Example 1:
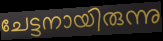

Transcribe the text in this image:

ചേട്ടനായിരുന്നു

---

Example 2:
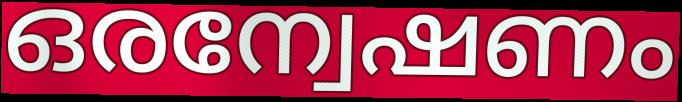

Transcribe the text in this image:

ഒരന്വേഷണം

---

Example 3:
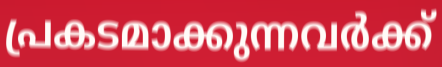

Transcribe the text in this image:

പ്രകടമാക്കുന്നവർക്ക്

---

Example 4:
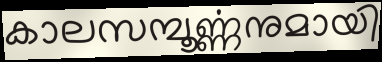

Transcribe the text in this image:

കാലസമ്പൂൎണ്ണനുമായി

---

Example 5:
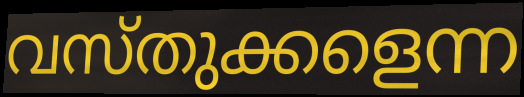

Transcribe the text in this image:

വസ്തുക്കളെന്ന